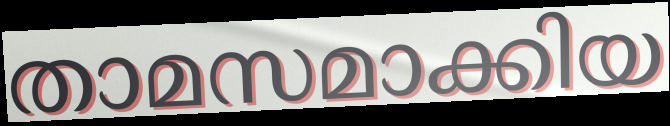
താമസമാക്കിയ